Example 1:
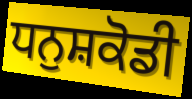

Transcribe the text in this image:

ਧਨੁਸ਼ਕੋਡੀ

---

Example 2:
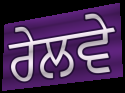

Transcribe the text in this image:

ਰੇਲਵੇ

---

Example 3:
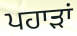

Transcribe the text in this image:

ਪਹਾੜਾਂ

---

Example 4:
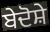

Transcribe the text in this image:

ਬੇਦੋਸ਼ੇ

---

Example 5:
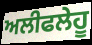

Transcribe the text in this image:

ਅਲੀਫਲੇਹੂ